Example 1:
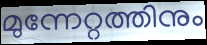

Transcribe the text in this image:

മുന്നേറ്റത്തിനും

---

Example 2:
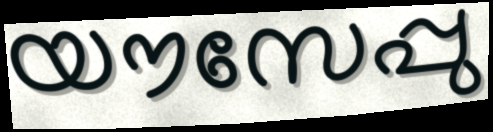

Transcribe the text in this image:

യൗസേപ്പു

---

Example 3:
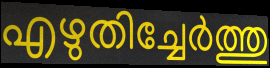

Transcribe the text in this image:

എഴുതിച്ചേർത്തു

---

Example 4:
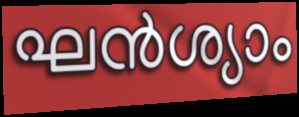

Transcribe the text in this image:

ഘൻശ്യാം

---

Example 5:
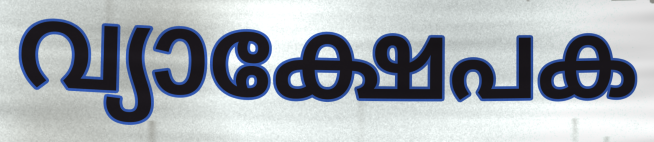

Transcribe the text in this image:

വ്യാക്ഷേപക